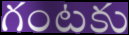
గంటకు